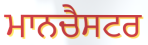
ਮਾਨਚੈਸਟਰ